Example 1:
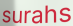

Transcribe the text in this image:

surahs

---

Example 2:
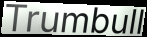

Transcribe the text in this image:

Trumbull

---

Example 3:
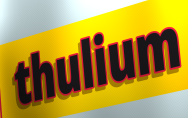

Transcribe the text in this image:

thulium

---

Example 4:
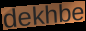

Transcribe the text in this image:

dekhbe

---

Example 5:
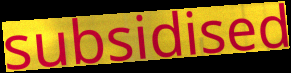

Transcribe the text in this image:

subsidised